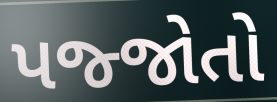
પજ્જોતો